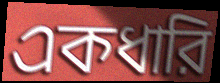
একধারি